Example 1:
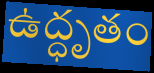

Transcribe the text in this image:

ఉద్ధృతం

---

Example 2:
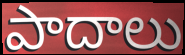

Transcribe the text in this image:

పాదాలు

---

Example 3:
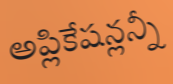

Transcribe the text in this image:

అప్లికేషన్లన్నీ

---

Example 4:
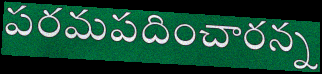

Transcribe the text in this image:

పరమపదించారన్న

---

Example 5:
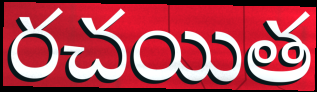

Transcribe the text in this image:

రచయిత